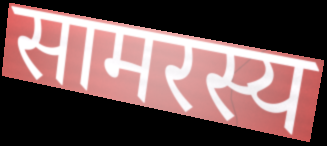
सामरस्य